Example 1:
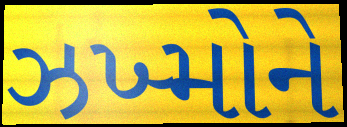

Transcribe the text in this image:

ઝખ્મોને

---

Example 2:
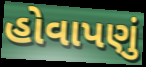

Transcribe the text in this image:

હોવાપણું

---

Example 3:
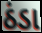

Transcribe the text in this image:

ઠંડા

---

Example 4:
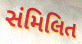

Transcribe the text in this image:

સંમિલિત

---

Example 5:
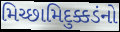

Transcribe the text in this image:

મિચ્છામિદુક્કડંનો